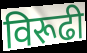
विरूढी